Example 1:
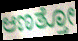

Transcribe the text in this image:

ಆಣತ್ತೋ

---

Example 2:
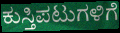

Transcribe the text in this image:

ಕುಸ್ತಿಪಟುಗಳಿಗೆ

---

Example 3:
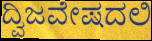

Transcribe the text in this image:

ದ್ವಿಜವೇಷದಲಿ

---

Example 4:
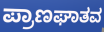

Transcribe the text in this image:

ಪ್ರಾಣಘಾತವ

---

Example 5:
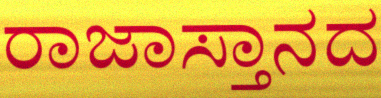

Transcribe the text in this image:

ರಾಜಾಸ್ತಾನದ